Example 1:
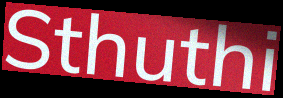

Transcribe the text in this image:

Sthuthi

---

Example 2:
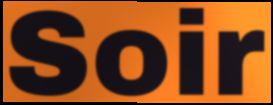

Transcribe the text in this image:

Soir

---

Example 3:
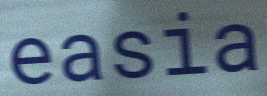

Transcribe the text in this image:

easia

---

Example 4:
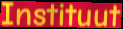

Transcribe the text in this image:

Instituut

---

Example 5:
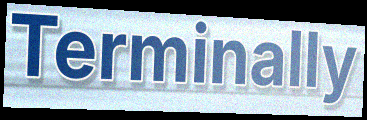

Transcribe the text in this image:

Terminally